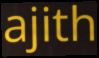
ajith